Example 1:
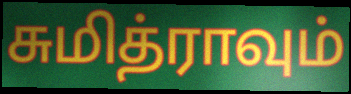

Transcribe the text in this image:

சுமித்ராவும்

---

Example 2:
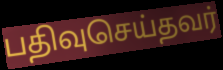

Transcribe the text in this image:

பதிவுசெய்தவர்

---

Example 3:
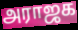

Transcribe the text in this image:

அராஜக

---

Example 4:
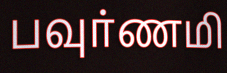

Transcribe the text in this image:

பவுர்ணமி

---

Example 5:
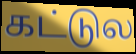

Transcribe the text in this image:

கட்டுல